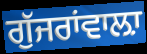
ਗੁੱਜਰਾਂਵਾਲ਼ਾ